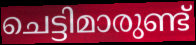
ചെട്ടിമാരുണ്ട്